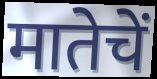
मातेचें